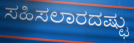
ಸಹಿಸಲಾರದಷ್ಟು